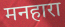
मनहारा